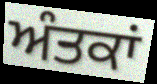
ਅੰਤਕਾਂ